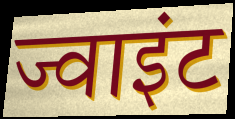
ज्वाइंट